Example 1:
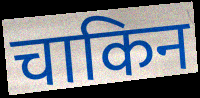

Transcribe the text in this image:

चाकिन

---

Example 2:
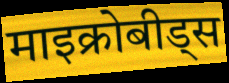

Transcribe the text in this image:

माइक्रोबीड्स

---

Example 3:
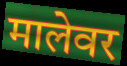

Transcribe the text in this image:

मालेवर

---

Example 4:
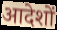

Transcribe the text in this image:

आदेशों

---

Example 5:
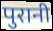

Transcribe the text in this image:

पुरानी